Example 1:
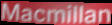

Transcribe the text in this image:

Macmillan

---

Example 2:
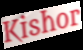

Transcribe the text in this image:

Kishor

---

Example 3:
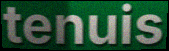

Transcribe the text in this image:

tenuis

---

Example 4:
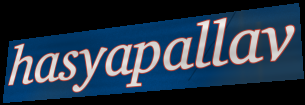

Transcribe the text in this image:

hasyapallav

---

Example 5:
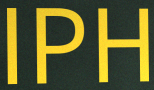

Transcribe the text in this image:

IPH